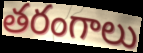
తరంగాలు